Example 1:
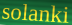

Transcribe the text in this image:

solanki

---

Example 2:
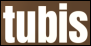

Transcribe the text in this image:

tubis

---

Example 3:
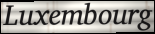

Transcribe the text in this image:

Luxembourg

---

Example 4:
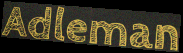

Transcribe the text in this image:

Adleman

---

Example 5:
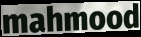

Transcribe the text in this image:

mahmood